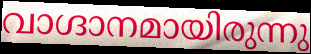
വാഗ്ദാനമായിരുന്നു